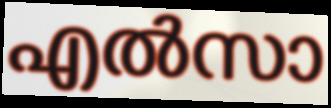
എൽസാ